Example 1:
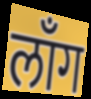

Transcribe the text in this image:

लाँग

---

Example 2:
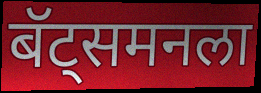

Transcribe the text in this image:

बॅट्समनला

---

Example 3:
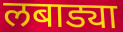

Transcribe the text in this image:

लबाड्या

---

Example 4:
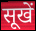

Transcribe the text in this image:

सूखें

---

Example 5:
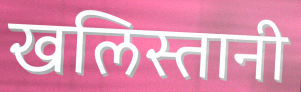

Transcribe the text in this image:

खलिस्तानी